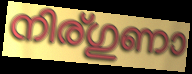
നിര്ഗുണാ